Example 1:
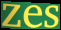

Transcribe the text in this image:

zes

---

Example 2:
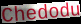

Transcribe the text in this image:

Chedodu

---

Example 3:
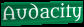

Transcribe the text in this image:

Audacity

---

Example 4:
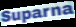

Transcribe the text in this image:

Suparna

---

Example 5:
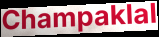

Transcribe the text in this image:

Champaklal